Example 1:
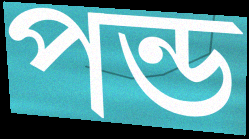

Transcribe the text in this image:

পন্ড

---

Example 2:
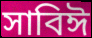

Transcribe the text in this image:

সাবিঈ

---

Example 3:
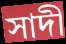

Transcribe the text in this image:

সাদী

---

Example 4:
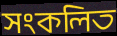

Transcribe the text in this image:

সংকলিত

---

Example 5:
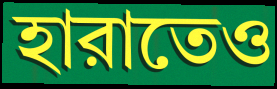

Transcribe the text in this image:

হারাতেও